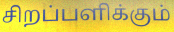
சிறப்பளிக்கும்